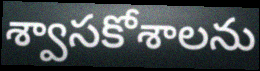
శ్వాసకోశాలను